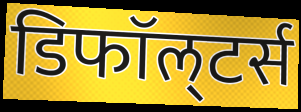
डिफॉल्टर्स